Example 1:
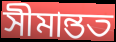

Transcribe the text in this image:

সীমান্তত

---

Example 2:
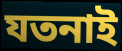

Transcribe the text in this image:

যতনাই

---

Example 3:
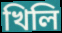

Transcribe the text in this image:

খিলি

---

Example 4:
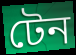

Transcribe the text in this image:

টেন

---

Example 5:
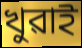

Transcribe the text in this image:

খুৱাই